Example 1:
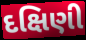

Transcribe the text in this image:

દક્ષિણી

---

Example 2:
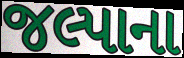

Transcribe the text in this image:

જલ્પાના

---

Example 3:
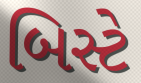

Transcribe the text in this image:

બિસ્ટે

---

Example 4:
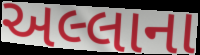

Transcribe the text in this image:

અલ્લાના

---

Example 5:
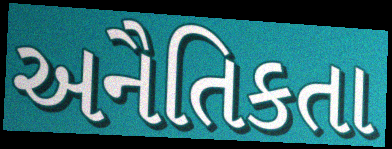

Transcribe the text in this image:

અનૈતિકતા